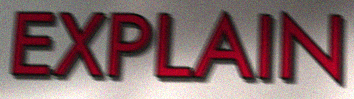
EXPLAIN